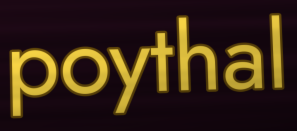
poythal